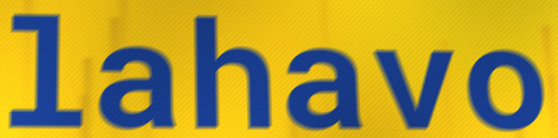
lahavo